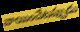
వాయించేటప్పుడు